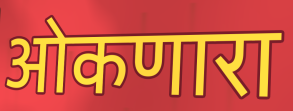
ओकणारा